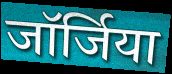
जॉर्जिया